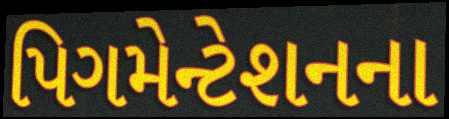
પિગમેન્ટેશનના